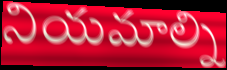
నియమాల్ని